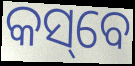
କସ୍‌ବେ